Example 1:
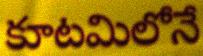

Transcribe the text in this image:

కూటమిలోనే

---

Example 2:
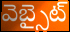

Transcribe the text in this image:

వెబ్సైట్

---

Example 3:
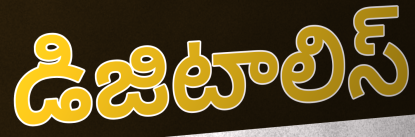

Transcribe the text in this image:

డిజిటాలిస్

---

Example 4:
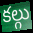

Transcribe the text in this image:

కల్గు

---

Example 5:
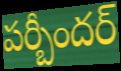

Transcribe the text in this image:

పర్బీందర్